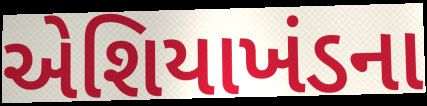
એશિયાખંડના